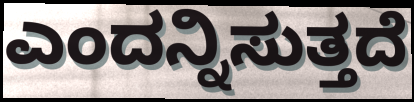
ಎಂದನ್ನಿಸುತ್ತದೆ